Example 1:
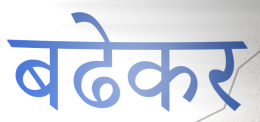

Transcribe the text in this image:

बढेकर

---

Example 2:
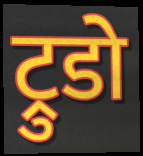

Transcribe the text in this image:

ट्रुडो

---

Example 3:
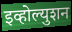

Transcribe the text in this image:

इव्होल्युशन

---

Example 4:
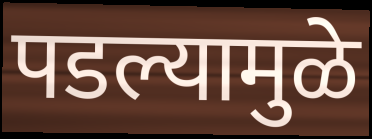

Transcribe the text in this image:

पडल्यामुळे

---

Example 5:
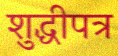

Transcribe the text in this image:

शुद्धीपत्र